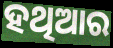
ହଥିଆର